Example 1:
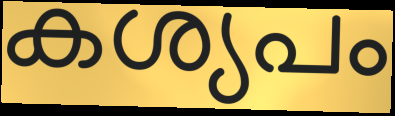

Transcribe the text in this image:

കശ്യപം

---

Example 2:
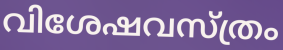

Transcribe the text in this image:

വിശേഷവസ്ത്രം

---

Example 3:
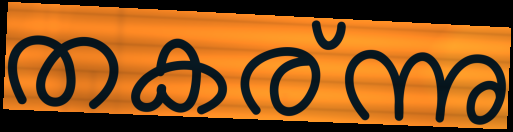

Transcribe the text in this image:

തകര്ന്നു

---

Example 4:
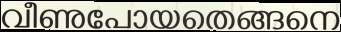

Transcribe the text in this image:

വീണുപോയതെങ്ങനെ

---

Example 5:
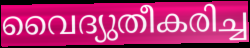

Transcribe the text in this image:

വൈദ്യുതീകരിച്ച